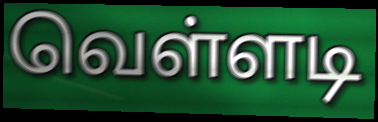
வெள்ளடி